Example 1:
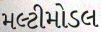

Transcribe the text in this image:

મલ્ટીમોડલ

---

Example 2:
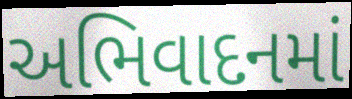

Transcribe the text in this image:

અભિવાદનમાં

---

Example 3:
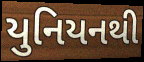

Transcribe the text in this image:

યુનિયનથી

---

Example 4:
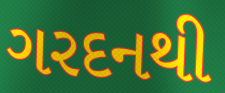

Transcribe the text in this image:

ગરદનથી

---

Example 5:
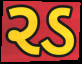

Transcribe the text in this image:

રડ